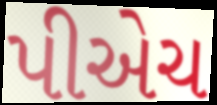
પીએચ